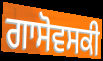
ਗਾਸੋਵਸਕੀ